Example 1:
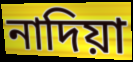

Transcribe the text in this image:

নাদিয়া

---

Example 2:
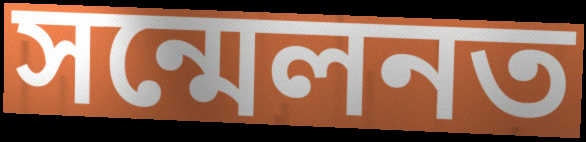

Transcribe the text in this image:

সন্মেলনত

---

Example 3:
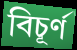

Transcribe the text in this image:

বিচূৰ্ণ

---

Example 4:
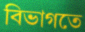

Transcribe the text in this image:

বিভাগতে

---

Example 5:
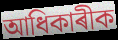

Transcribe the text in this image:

আধিকাৰীক